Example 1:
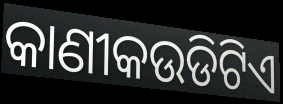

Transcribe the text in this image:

କାଣୀକଉଡିଟିଏ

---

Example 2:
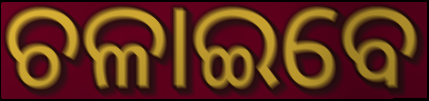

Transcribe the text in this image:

ଚଳାଇବେ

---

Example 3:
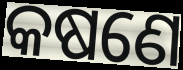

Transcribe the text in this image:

କଷଣେ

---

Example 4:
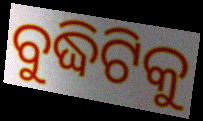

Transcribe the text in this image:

ବୁଦ୍ଧିଟିକୁ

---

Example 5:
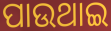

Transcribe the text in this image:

ପାଉଥାଇ